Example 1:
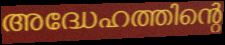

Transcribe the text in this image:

അദ്ധേഹത്തിന്റെ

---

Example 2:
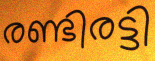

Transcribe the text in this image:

രണ്ടിരട്ടി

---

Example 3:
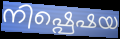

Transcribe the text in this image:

നിഷ്പെഷയ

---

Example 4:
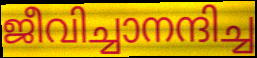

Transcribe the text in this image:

ജീവിച്ചാനന്ദിച്ച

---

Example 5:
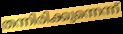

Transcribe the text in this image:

തന്നിരിക്കുന്നെന്ന്